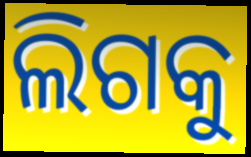
ଲିଗକୁ